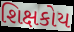
શિક્ષકોય